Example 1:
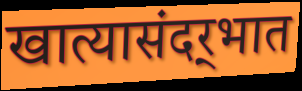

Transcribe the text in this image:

खात्यासंदर्भात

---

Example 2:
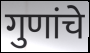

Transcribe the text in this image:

गुणांचे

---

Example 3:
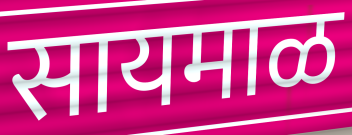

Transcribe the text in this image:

सायमाळ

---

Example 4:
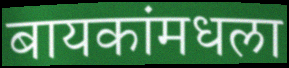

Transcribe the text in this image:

बायकांमधला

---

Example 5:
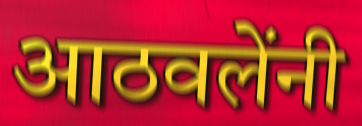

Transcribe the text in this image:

आठवलेंनी